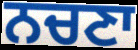
ਨਚਣਾ